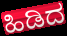
ಹಿಡಿದ